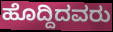
ಹೊದ್ದಿದವರು